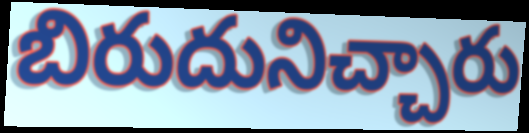
బిరుదునిచ్చారు